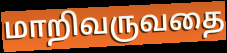
மாறிவருவதை